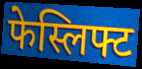
फेस्लिफ्ट